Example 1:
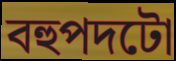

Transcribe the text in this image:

বহুপদটো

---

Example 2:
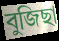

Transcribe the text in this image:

বুজিছা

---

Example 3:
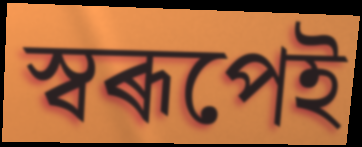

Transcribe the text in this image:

স্বৰূপেই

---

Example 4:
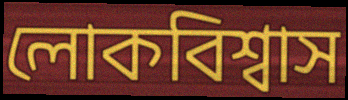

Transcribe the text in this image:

লোকবিশ্বাস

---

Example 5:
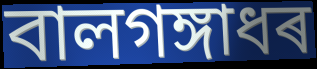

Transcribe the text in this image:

বালগঙ্গাধৰ